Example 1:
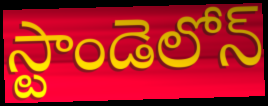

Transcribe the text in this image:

స్టాండెలోన్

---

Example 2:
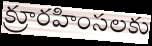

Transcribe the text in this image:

క్రూరహింసలకు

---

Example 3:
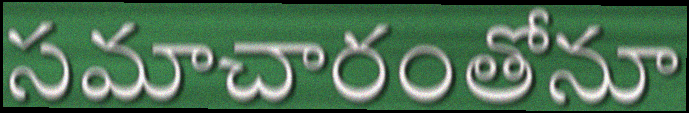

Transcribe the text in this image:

సమాచారంతోనూ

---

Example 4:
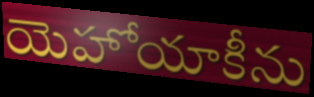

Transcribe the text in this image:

యెహోయాకీను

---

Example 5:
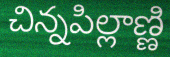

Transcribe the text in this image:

చిన్నపిల్లాణ్ణి